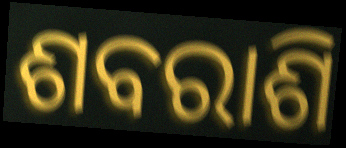
ଶବରାଶି